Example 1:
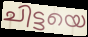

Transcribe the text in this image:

ചിട്ടയെ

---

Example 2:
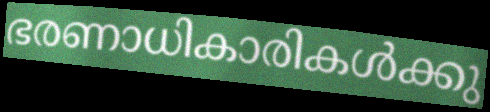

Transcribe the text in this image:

ഭരണാധികാരികൾക്കു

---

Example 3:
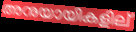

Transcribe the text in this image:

അനുയായികളില്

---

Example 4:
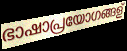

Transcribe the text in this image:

ഭാഷാപ്രയോഗങ്ങള്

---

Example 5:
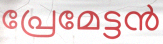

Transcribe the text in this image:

പ്രേമേട്ടൻ